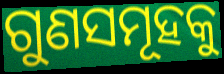
ଗୁଣସମୂହକୁ